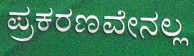
ಪ್ರಕರಣವೇನಲ್ಲ